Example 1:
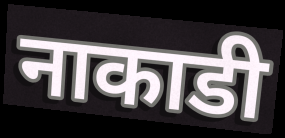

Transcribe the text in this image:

नाकाडी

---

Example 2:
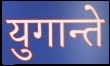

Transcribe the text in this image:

युगान्ते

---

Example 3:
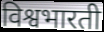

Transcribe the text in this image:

विश्वभारती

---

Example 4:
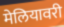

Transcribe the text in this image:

मेलियावरी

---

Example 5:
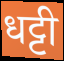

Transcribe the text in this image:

धट्टी